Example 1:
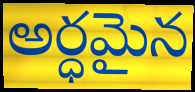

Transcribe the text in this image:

అర్ధమైన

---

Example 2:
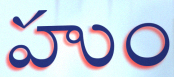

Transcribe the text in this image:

హుం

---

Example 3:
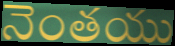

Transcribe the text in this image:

నెంతయు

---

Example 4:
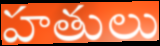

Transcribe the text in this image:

హతులు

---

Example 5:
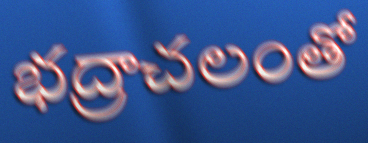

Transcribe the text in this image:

భద్రాచలంతో